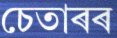
চেতাৰৰ